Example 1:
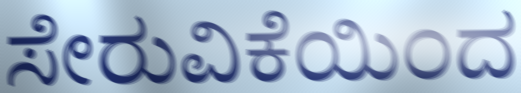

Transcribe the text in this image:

ಸೇರುವಿಕೆಯಿಂದ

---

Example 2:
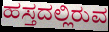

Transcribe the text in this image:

ಹಸ್ತದಲ್ಲಿರುವ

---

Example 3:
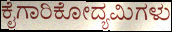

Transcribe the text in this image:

ಕೈಗಾರಿಕೋದ್ಯಮಿಗಳು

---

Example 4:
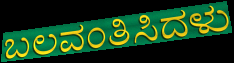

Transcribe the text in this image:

ಬಲವಂತಿಸಿದಳು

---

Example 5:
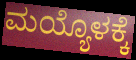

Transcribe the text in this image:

ಮಯ್ಯೊಳಕ್ಕೆ